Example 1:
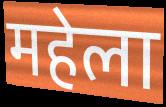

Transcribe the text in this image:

महेला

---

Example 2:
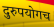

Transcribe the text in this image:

दुरुपयोगच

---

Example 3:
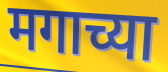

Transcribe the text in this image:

मगाच्या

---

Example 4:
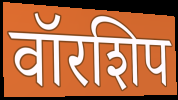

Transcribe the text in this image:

वॉरशिप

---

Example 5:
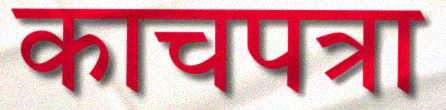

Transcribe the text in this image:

काचपत्रा